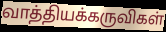
வாத்தியக்கருவிகள்